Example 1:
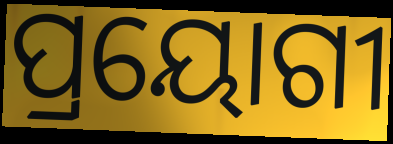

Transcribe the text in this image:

ପ୍ରୟୋଗୀ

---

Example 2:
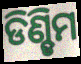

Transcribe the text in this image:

ଡିଣ୍ଡିମ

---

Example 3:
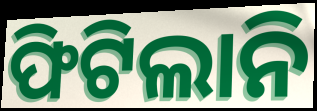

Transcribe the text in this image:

ଫିଟିଲାନି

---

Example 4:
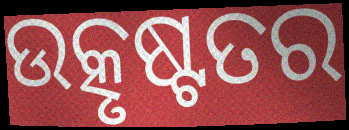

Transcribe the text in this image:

ଉତ୍କୃଷ୍ଟତର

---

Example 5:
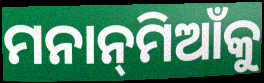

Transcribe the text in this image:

ମନାନ୍‌ମିଆଁକୁ